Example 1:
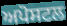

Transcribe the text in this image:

ਅਪੋਸਟਲ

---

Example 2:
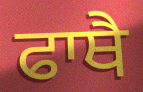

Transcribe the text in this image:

ਫਾਥੈ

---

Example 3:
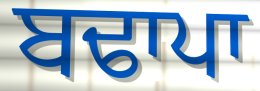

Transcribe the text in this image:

ਬਢਾਪਾ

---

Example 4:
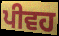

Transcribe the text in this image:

ਪੀਵਹ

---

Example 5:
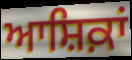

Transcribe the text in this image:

ਆਸ਼ਿਕ਼ਾਂ